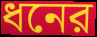
ধনের